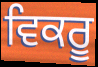
ਵਿਕਰੂ